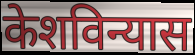
केशविन्यास